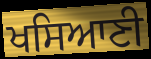
ਖਸਿਆਣੀ